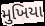
મુખિયા